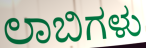
ಲಾಬಿಗಳು